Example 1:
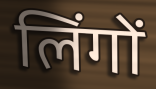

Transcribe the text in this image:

लिंगों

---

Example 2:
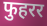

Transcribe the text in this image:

फुहरर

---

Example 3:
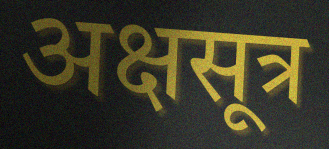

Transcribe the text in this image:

अक्षसूत्र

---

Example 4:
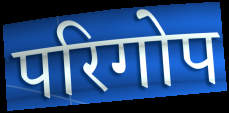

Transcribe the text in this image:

परिगोप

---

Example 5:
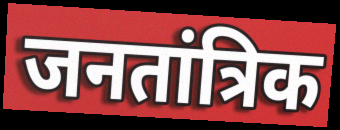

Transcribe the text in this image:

जनतांत्रिक